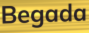
Begada